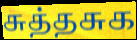
சுத்தசுக